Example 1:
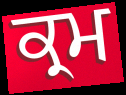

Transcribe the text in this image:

ਕ੍ਰਮ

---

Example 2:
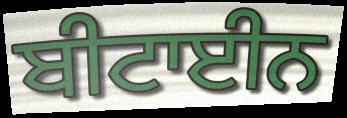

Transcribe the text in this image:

ਬੀਟਾਈਨ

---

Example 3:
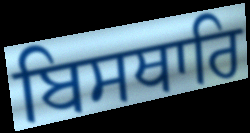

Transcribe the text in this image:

ਬਿਸਥਾਰਿ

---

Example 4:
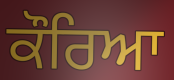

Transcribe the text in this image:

ਕੌਰਿਆ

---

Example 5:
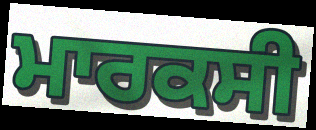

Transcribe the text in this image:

ਮਾਰਕਸੀ